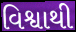
વિશ્વાથી